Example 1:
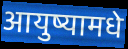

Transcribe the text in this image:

आयुष्यामधे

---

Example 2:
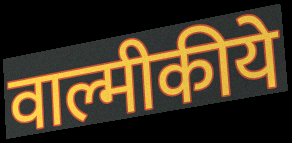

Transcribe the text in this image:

वाल्मीकीये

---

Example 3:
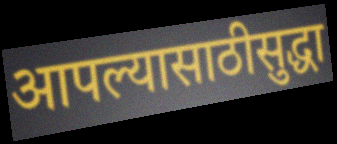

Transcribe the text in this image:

आपल्यासाठीसुद्धा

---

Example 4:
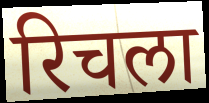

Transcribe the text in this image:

रिचला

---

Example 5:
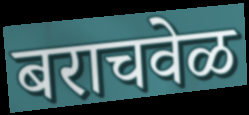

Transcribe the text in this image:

बराचवेळ